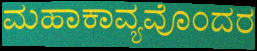
ಮಹಾಕಾವ್ಯವೊಂದರ